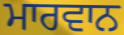
ਮਾਰਵਾਨ